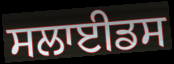
ਸਲਾਈਡਸ